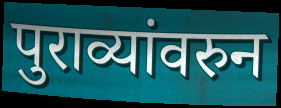
पुराव्यांवरुन